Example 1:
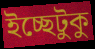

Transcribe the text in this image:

ইচ্ছেটুকু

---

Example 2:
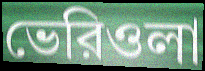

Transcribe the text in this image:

ভেরিওলা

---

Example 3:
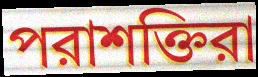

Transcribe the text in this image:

পরাশক্তিরা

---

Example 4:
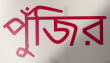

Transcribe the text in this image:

পুঁজির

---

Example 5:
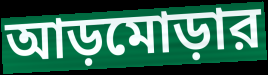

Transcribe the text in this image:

আড়মোড়ার